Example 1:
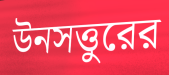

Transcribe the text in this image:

উনসত্তুরের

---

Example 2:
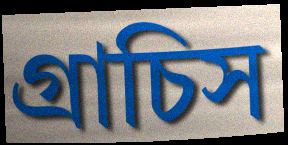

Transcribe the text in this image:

গ্রাচিস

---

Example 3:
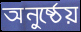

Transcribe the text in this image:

অনুষ্ঠেয়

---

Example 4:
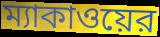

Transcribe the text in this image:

ম্যাকাওয়ের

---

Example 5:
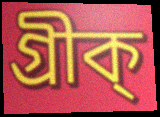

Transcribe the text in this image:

গ্রীক্